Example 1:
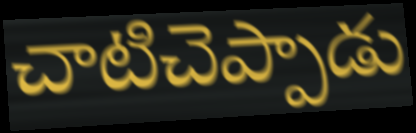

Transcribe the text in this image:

చాటిచెప్పాడు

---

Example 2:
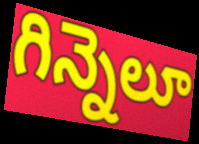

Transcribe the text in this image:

గిన్నెలూ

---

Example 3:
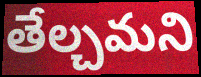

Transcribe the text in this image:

తేల్చమని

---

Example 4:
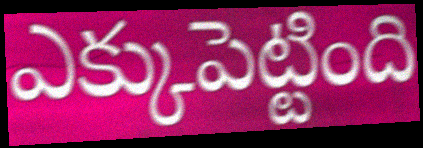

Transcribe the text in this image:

ఎక్కుపెట్టింది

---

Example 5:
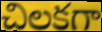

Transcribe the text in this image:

చిలకగా